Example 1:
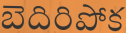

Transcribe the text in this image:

బెదిరిపోక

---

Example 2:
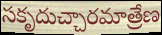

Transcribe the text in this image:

సకృదుచ్చారమాత్రేణ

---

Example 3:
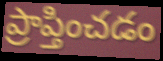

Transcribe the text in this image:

ప్రాప్తించడం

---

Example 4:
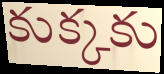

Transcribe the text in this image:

కుక్కకు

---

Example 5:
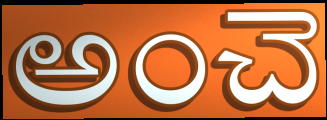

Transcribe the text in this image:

అంచె